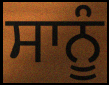
ਸਾਨੂੰ